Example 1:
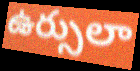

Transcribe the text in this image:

ఉర్సులా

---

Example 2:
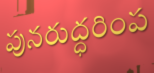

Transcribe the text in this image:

పునరుద్ధరింప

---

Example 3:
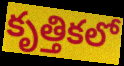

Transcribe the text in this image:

కృత్తికలో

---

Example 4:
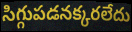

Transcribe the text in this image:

సిగ్గుపడనక్కరలేదు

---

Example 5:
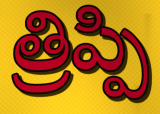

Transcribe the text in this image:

త్రిప్పి